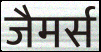
जैमर्स